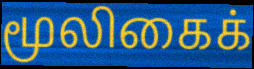
மூலிகைக்